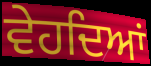
ਵੇਹਦਿਆਂ